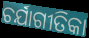
ଚର୍ଯାଗୀତିକା